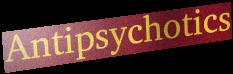
Antipsychotics